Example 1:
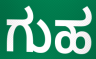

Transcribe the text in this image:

ಗುಹ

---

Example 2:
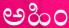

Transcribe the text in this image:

ಅಹಿಂ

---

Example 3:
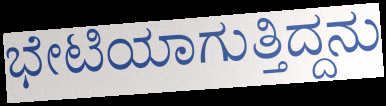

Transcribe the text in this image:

ಭೇಟಿಯಾಗುತ್ತಿದ್ದನು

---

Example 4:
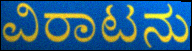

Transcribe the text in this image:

ವಿರಾಟನು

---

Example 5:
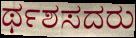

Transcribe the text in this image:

ರ್ಥಶಸದರು